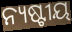
ନ୍ୟଷ୍ଟୀୟ